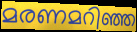
മരണമറിഞ്ഞ